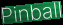
Pinball